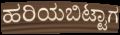
ಹರಿಯಬಿಟ್ಟಾಗ